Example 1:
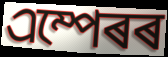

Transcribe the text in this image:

এম্পেৰৰ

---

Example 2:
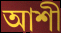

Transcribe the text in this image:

আশী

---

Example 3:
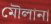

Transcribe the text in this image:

মৌলানা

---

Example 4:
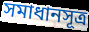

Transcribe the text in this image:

সমাধানসূত্ৰ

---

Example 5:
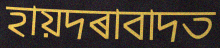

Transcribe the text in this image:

হায়দৰাবাদত